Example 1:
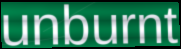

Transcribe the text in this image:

unburnt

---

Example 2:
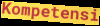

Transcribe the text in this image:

Kompetensi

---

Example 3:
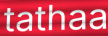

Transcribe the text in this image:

tathaa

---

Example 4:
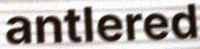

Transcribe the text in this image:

antlered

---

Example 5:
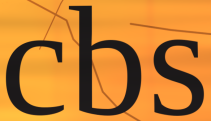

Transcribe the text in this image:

cbs